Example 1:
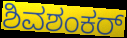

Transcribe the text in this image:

ಶಿವಶಂಕರ್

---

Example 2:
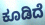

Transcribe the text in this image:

ಕೂಡಿದೆ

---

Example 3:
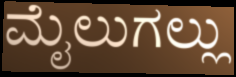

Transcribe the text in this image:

ಮೈಲುಗಲ್ಲು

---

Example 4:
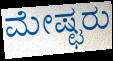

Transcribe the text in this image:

ಮೇಷ್ಟರು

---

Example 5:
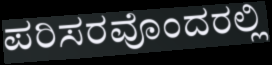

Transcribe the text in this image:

ಪರಿಸರವೊಂದರಲ್ಲಿ